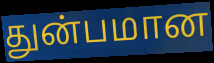
துன்பமான